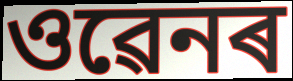
ওৱেনৰ